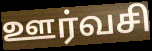
ஊர்வசி